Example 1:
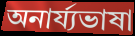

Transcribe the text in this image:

অনার্য্যভাষা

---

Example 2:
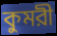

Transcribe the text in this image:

কুমরী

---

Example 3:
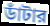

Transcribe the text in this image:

ডাঁটার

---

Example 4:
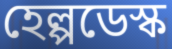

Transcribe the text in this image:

হেল্পডেস্ক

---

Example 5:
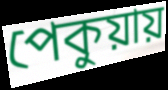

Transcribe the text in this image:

পেকুয়ায়